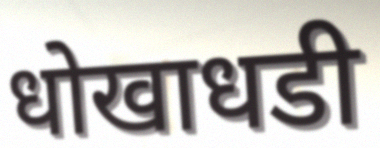
धोखाधडी